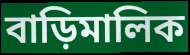
বাড়িমালিক